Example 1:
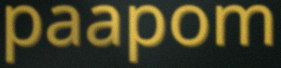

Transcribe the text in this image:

paapom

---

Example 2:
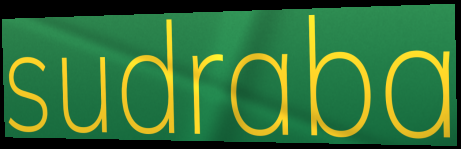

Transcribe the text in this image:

sudraba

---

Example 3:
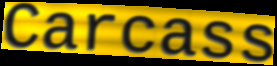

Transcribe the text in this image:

Carcass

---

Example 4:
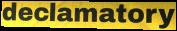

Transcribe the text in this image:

declamatory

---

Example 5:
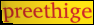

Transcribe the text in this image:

preethige